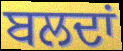
ਬਲਦਾਂ